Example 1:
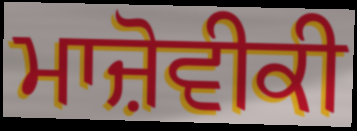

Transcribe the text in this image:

ਮਾਜ਼ੋਵੀਕੀ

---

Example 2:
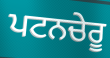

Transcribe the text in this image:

ਪਟਨਚੇਰੂ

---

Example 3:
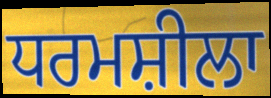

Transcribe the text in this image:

ਧਰਮਸ਼ੀਲਾ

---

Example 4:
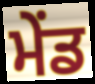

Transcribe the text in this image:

ਮੇਂਡ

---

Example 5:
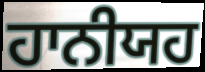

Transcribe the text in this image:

ਹਾਨੀਯਹ